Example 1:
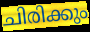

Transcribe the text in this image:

ചിരിക്കും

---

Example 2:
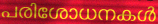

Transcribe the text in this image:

പരിശോധനകൾ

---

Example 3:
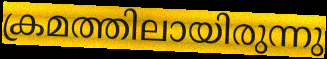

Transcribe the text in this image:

ക്രമത്തിലായിരുന്നു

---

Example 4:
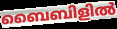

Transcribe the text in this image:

ബൈബിളിൽ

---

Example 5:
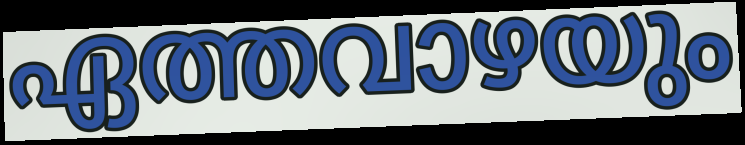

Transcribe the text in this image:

ഏത്തവാഴയും